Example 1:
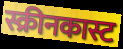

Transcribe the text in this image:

स्क्रीनकास्ट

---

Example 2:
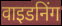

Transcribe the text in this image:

वाइडनिंग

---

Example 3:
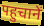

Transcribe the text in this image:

पहुचानें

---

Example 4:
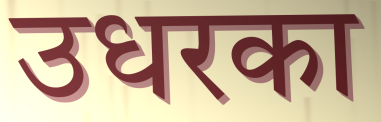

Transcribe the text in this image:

उधरका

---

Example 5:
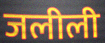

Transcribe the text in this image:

जलीली